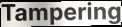
Tampering